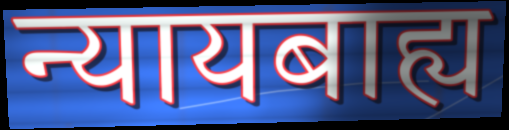
न्यायबाह्य